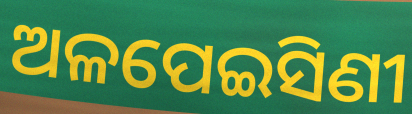
ଅଳପେଇସିଣୀ